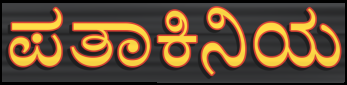
ಪತಾಕಿನಿಯ